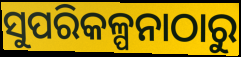
ସୁପରିକଳ୍ପନାଠାରୁ